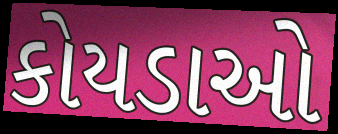
કોયડાઓ